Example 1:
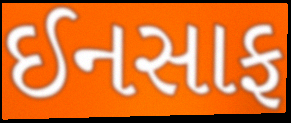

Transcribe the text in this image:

ઈનસાફ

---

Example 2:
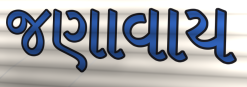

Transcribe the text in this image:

જણાવાય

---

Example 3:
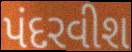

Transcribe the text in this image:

પંદરવીશ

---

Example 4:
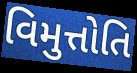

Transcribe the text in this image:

વિમુત્તોતિ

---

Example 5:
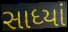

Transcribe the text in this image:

સાધ્યાં